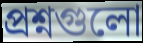
প্রশ্নগুলো